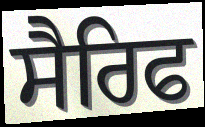
ਸੈਰਿਫ